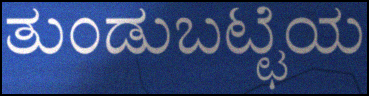
ತುಂಡುಬಟ್ಟೆಯ